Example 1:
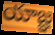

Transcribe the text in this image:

యాజ్ఞ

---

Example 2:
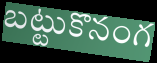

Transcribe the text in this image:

బట్టుకొనంగ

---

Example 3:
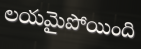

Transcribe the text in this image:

లయమైపోయింది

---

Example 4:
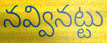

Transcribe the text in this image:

నవ్వినట్టు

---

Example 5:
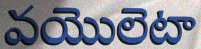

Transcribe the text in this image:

వయొలెటా